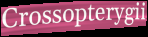
Crossopterygii